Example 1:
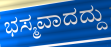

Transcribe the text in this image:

ಭಸ್ಮವಾದದ್ದು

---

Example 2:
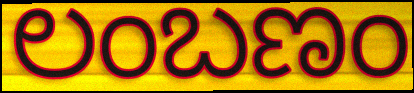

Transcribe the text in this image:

ಲಂಬಣಂ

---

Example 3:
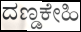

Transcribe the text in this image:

ದಣ್ಡಕೇಹಿ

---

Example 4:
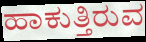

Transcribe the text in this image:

ಹಾಕುತ್ತಿರುವ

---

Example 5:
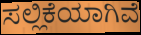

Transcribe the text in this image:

ಸಲ್ಲಿಕೆಯಾಗಿವೆ